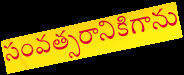
సంవత్సరానికిగాను